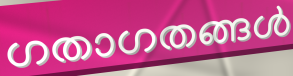
ഗതാഗതങ്ങൾ